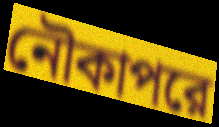
নৌকাপরে